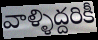
వాళ్ళిద్దరికీ